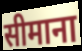
सीमाना